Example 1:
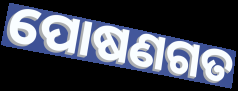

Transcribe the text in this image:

ପୋଷଣଗତ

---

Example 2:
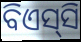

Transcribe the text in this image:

ବିଏସ୍‌ସି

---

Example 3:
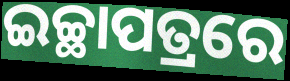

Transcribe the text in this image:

ଇଚ୍ଛାପତ୍ରରେ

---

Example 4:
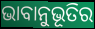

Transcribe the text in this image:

ଭାବାନୁଭୂତିର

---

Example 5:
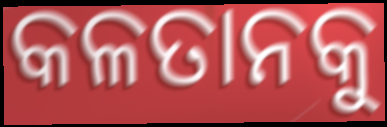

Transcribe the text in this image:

କଳତାନକୁ